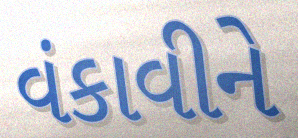
વંકાવીને